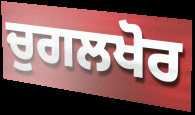
ਚੁਗਲਖੋਰ